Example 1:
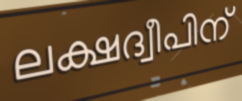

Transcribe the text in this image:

ലക്ഷദ്വീപിന്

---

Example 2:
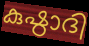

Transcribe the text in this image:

കുഷ്ഠാദി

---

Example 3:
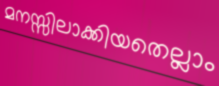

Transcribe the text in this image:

മനസ്സിലാക്കിയതെല്ലാം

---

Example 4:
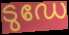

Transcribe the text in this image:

ടുഡേ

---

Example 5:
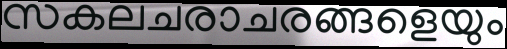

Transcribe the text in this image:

സകലചരാചരങ്ങളെയും